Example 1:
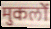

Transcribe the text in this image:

मुकलों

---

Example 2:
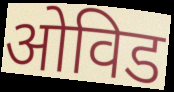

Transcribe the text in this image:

ओविड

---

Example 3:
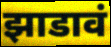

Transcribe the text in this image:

झाडावं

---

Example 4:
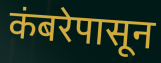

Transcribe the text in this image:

कंबरेपासून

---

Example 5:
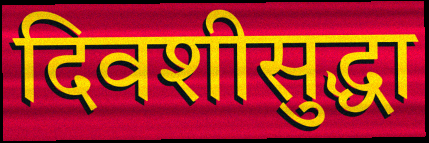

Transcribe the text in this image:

दिवशीसुद्धा